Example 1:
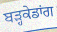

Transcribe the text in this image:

ਬੜ੍ਹਕੇਡਾਂਗ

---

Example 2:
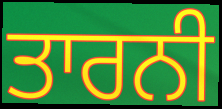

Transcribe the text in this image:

ਤਾਰਨੀ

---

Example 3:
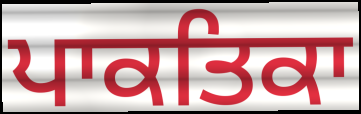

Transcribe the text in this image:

ਪਾਕਤਿਕਾ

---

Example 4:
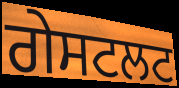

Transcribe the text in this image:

ਗੇਸਟਲਟ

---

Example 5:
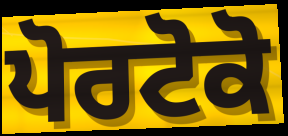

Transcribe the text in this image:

ਪੋਰਟੋਕੋ